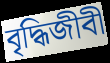
বৃদ্ধিজীবী